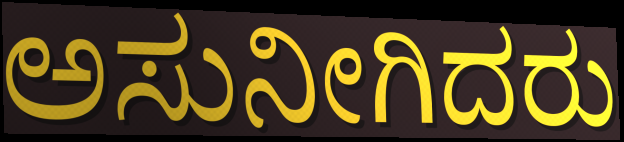
ಅಸುನೀಗಿದರು